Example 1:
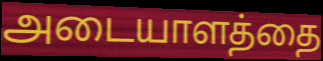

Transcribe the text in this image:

அடையாளத்தை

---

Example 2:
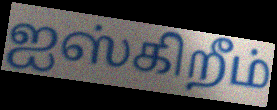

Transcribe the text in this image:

ஐஸ்கிறீம்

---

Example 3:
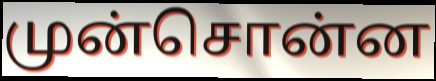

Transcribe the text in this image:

முன்சொன்ன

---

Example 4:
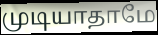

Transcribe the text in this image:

முடியாதாமே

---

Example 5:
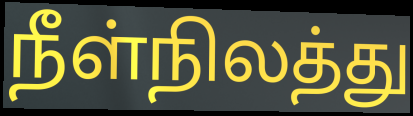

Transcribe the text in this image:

நீள்நிலத்து